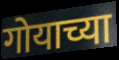
गोयाच्या